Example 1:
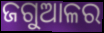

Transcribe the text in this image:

ଜଗୁଆଳର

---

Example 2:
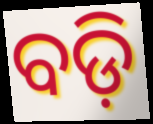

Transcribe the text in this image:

ବଡ଼ି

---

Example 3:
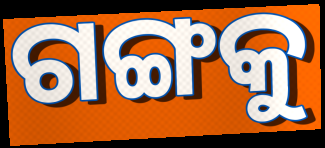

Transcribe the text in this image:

ଗଙ୍ଗକୁ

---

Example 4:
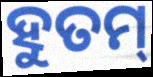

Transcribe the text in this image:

ହୁତମ୍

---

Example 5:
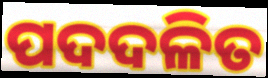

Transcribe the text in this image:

ପଦଦଳିତ